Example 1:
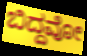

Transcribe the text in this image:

ಬಿದ್ದವೋ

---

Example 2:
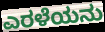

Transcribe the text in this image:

ಎರಳೆಯನು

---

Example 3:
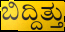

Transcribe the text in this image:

ಬಿದ್ದಿತ್ತು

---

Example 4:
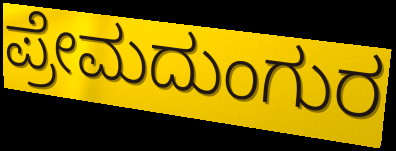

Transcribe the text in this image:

ಪ್ರೇಮದುಂಗುರ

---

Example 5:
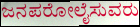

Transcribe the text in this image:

ಜನಪರೋಲೈಸುವರು